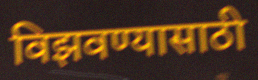
विझवण्यासाठी